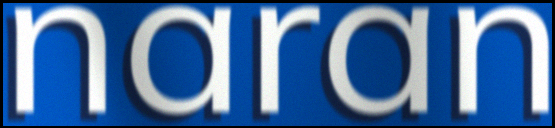
naran